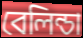
বেলিন্ডা